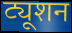
ट्यूशन